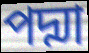
পদ্মা